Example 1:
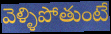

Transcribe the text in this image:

వెళ్ళిపోతుంటే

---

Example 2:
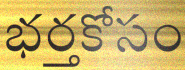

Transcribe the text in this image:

భర్తకోసం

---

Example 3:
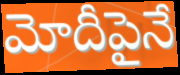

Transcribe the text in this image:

మోదీపైనే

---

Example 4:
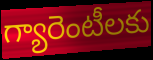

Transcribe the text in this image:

గ్యారెంటీలకు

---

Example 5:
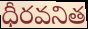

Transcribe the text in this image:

ధీరవనిత